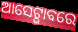
ଆସେଟ୍ଭାବରେ